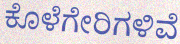
ಕೊಳೆಗೇರಿಗಳಿವೆ